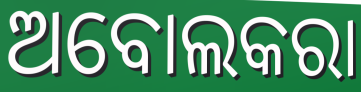
ଅବୋଲକରା